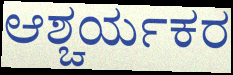
ಆಶ್ಚರ್ಯಕರ